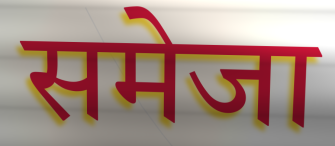
समेजा